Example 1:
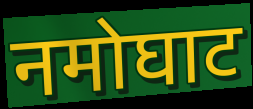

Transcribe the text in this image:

नमोघाट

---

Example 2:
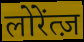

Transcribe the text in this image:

लोरेंत्ज़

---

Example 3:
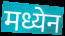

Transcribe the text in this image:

मध्येन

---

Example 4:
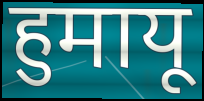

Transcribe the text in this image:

हुमायू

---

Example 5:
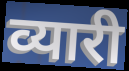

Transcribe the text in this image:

व्यारी